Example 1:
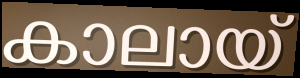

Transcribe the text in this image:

കാലായ്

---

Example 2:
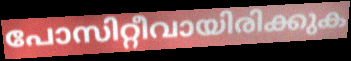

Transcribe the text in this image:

പോസിറ്റീവായിരിക്കുക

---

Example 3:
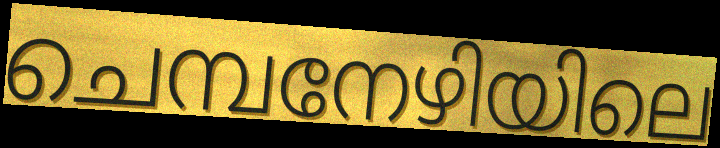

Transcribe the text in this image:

ചെമ്പനേഴിയിലെ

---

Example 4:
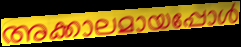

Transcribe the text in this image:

അക്കാലമായപ്പോൾ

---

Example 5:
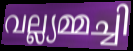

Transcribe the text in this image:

വല്ല്യമ്മച്ചി